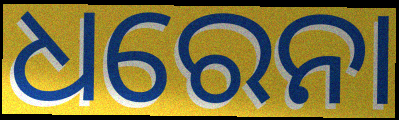
ଧରେନା